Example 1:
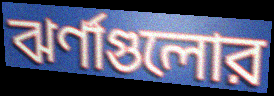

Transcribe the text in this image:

ঝর্ণাগুলোর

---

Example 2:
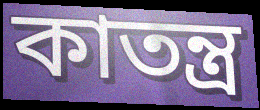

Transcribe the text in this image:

কাতন্ত্র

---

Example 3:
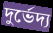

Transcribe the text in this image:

দুর্ভেদ্য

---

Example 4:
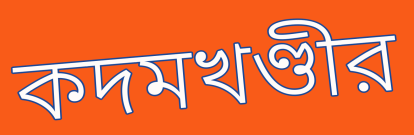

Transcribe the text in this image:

কদমখণ্ডীর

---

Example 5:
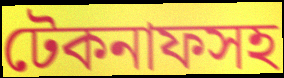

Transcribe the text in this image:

টেকনাফসহ